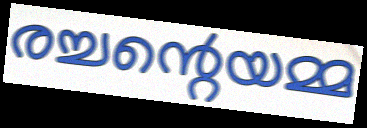
രച്ചന്റെയമ്മ